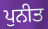
ਪੁਨੀਤ